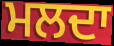
ਮਲਦਾ